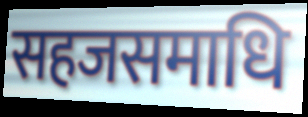
सहजसमाधि